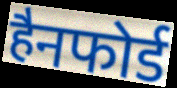
हैनफोर्ड